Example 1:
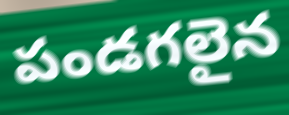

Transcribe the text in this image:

పండగలైన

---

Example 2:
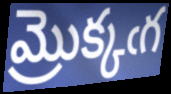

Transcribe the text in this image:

మ్రొక్కఁగ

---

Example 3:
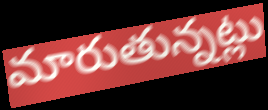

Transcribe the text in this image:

మారుతున్నట్లు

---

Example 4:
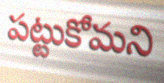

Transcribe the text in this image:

పట్టుకోమని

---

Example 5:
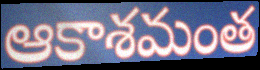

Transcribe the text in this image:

ఆకాశమంత